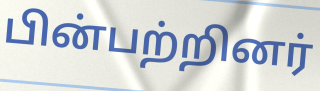
பின்பற்றினர்